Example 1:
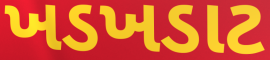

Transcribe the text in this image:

ખડખડાટ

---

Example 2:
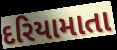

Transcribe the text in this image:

દરિયામાતા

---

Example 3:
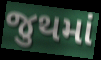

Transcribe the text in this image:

જુથમાં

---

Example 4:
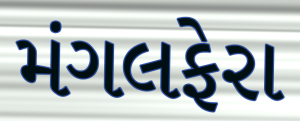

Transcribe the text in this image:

મંગલફેરા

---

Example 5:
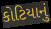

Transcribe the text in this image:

કોટિયાનું